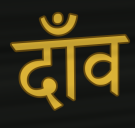
दाँव